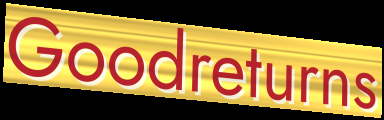
Goodreturns